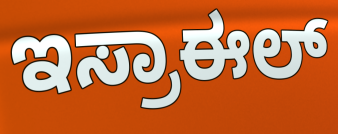
ಇಸ್ರಾಈಲ್